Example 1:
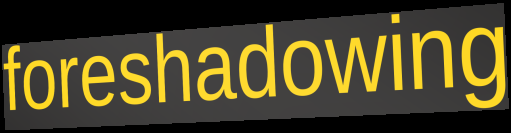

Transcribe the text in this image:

foreshadowing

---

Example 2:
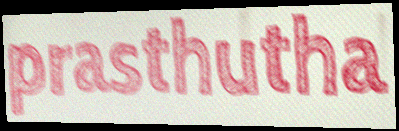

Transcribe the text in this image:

prasthutha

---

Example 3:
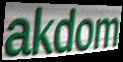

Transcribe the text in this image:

akdom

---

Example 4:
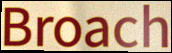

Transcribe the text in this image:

Broach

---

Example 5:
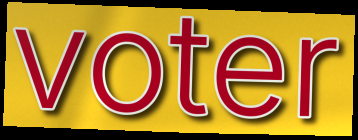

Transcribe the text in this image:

voter